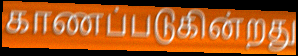
காணப்படுகின்றது